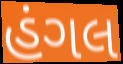
હંગલ